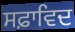
ਸਫ਼ਾਵਿਦ